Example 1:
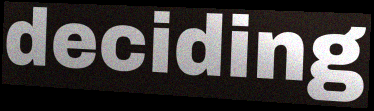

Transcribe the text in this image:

deciding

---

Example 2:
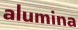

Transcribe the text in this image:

alumina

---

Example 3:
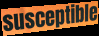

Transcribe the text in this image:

susceptible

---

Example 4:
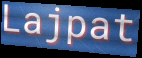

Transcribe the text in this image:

Lajpat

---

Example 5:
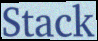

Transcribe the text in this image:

Stack